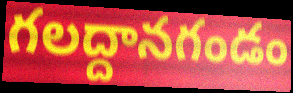
గలద్దానగండం